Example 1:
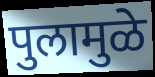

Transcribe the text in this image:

पुलामुळे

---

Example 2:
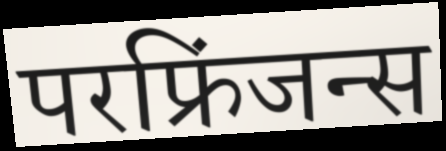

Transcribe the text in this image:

परफ्रिंजन्स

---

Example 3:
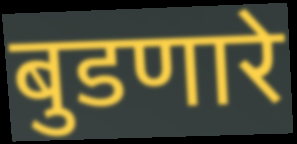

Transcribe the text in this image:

बुडणारे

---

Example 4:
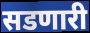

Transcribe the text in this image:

सडणारी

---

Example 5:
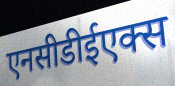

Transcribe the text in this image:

एनसीडीईएक्स